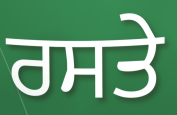
ਰਸਤੇ